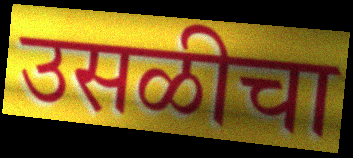
उसळीचा